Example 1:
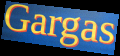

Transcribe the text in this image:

Gargas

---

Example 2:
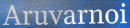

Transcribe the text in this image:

Aruvarnoi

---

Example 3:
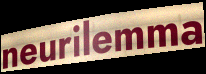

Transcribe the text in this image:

neurilemma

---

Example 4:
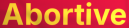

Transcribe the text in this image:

Abortive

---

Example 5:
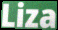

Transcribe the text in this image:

Liza